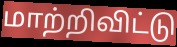
மாற்றிவிட்டு